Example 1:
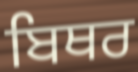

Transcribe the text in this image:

ਬਿਥਰ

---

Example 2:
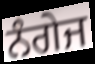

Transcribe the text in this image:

ਨੰਗੇਜ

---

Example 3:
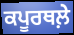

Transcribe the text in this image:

ਕਪੂਰਥਲ਼ੇ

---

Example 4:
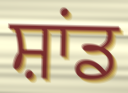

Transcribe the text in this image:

ਸ਼ਾਂਡ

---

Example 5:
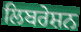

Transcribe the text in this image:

ਲਿਬਰੇਸ਼ਨ